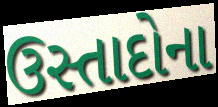
ઉસ્તાદોના